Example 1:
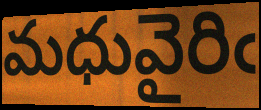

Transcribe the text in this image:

మధువైరిఁ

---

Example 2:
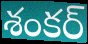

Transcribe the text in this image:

శంకర్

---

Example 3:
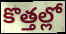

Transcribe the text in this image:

కొత్తల్లో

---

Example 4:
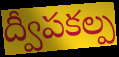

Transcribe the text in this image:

ద్వీపకల్ప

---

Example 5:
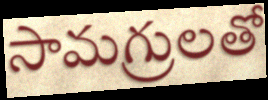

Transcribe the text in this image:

సామగ్రులతో